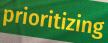
prioritizing